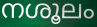
നശൂലം